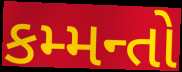
કમ્મન્તો